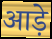
आड़े